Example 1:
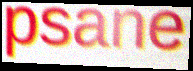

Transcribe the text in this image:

psane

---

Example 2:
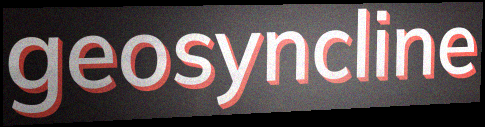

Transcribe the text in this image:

geosyncline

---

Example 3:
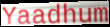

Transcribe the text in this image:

Yaadhum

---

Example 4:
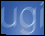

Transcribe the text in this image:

ugi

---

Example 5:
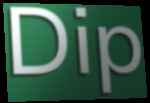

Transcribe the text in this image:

Dip